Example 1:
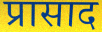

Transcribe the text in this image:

प्रासाद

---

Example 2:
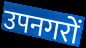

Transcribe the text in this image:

उपनगरों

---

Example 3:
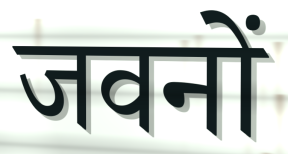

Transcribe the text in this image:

जवनों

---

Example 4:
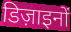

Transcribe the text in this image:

डिज़ाइनों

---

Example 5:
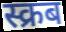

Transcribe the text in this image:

स्क्रब